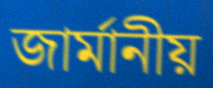
জার্মানীয়